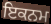
ਇਕਨਮ